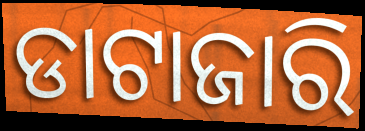
ଡାଟାଜାରି